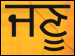
ਜਣੂ